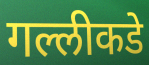
गल्लीकडे